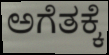
ಅಗೆತಕ್ಕೆ